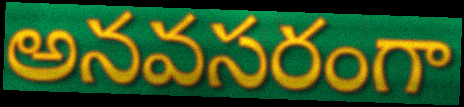
అనవసరంగా